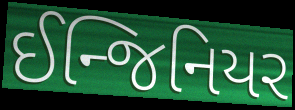
ઈન્જિનિયર